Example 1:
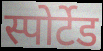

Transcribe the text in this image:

स्पोर्टेड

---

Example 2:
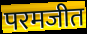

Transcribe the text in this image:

परमजीत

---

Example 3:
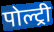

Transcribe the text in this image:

पोल्ट्री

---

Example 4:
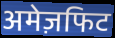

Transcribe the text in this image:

अमेज़फिट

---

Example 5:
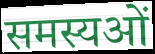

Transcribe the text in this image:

समस्यओं